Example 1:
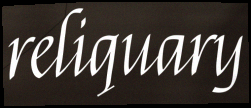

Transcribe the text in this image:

reliquary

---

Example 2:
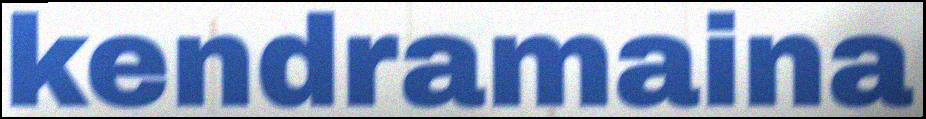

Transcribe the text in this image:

kendramaina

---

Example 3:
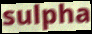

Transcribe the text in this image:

sulpha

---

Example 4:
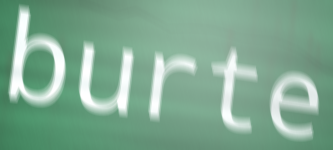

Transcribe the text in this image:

burte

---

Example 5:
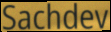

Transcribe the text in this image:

Sachdev